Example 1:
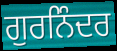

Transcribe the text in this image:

ਗੁਰਨਿੰਦਰ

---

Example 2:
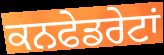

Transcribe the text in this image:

ਕਨਫੇਡਰੇਟਾਂ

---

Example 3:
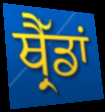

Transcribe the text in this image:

ਥ੍ਰੈੱਡਾਂ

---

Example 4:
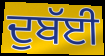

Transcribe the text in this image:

ਦੁਬੱਈ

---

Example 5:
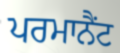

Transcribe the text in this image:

ਪਰਮਾਨੈਂਟ